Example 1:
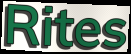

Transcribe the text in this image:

Rites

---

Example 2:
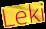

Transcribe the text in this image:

Leki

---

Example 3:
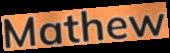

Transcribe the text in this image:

Mathew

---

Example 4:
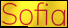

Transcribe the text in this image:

Sofia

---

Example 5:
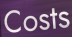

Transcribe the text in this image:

Costs